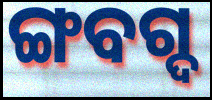
ଙ୍ଗବଗ୍ଦ